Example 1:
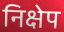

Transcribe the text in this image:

निक्षेप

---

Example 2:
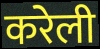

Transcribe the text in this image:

करेली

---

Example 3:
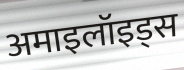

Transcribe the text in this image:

अमाइलॉइड्स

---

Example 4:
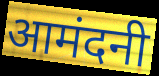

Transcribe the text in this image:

आमंदनी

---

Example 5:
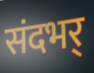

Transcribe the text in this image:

संदभर्